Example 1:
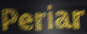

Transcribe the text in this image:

Periar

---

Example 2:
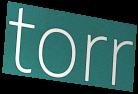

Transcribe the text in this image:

torr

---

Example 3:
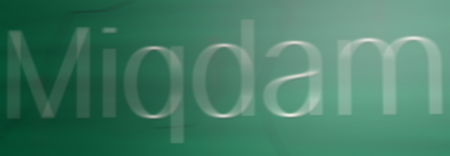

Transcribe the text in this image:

Miqdam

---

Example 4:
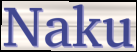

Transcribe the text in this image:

Naku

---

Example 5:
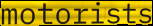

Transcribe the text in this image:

motorists